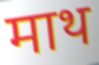
माथ